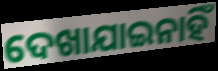
ଦେଖାଯାଇନାହିଁ